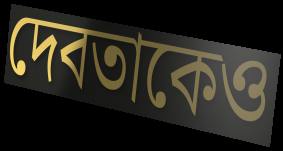
দেবতাকেও